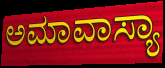
ಅಮಾವಾಸ್ಯಾ